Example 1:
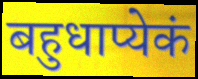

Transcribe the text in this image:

बहुधाप्येकं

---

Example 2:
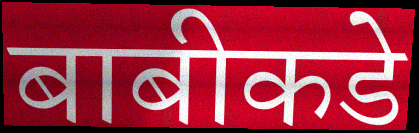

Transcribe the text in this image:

बाबीकडे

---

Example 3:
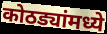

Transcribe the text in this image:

कोठड्यांमध्ये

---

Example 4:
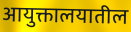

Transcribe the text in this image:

आयुक्तालयातील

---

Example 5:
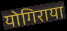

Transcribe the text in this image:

योगिराया